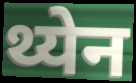
थ्येन